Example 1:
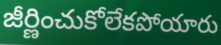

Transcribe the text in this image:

జీర్ణించుకోలేకపోయారు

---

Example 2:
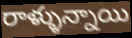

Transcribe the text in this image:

రాళ్ళున్నాయి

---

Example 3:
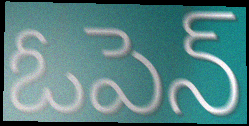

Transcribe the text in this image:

ఓపెన్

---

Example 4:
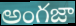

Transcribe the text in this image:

అంగజా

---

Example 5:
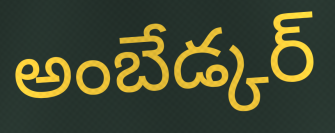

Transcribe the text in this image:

అంబేడ్కర్